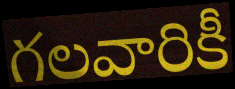
గలవారికీ